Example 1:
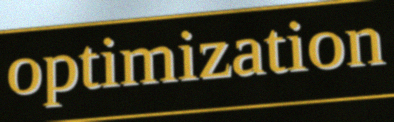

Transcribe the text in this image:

optimization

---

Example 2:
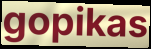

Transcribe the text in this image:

gopikas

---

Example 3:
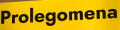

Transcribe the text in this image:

Prolegomena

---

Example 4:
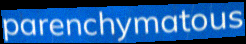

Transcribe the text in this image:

parenchymatous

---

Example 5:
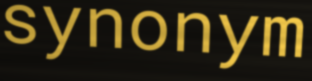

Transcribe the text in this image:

synonym